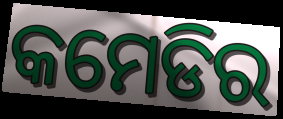
କମେଡିର